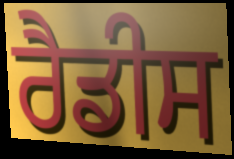
ਰੈਡੀਸ